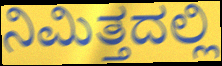
ನಿಮಿತ್ತದಲ್ಲಿ